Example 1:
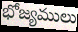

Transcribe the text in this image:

భోజ్యములు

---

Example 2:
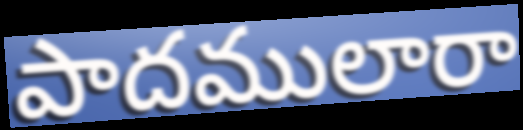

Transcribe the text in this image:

పాదములారా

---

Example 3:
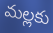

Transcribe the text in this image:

మల్లకు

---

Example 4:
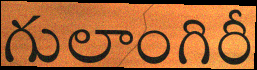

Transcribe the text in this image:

గులాంగిరీ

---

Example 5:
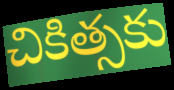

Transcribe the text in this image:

చికిత్సకు